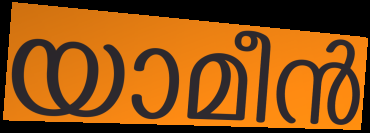
യാമീൻ